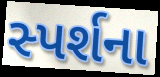
સ્પર્શના